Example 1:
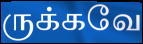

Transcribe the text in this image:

ருக்கவே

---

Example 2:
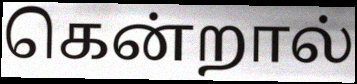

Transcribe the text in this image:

கென்றால்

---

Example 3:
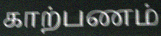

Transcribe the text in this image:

காற்பணம்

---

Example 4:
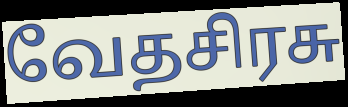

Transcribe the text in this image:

வேதசிரசு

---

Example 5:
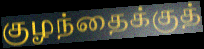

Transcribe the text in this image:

குழந்தைக்குத்